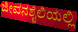
ಜೀವನಶೈಲಿಯಲ್ಲಿ